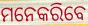
ମନେକରିବେ